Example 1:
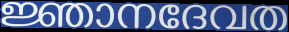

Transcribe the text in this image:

ജ്ഞാനദേവത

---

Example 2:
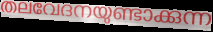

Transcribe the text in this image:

തലവേദനയുണ്ടാക്കുന്ന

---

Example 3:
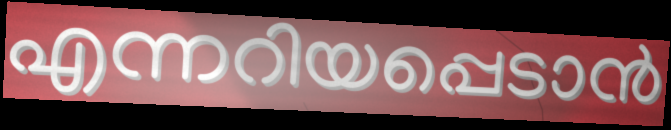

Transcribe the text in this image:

എന്നറിയപ്പെടാൻ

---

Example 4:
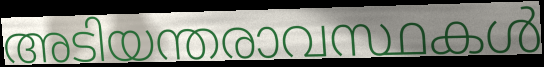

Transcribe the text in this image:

അടിയന്തരാവസ്ഥകൾ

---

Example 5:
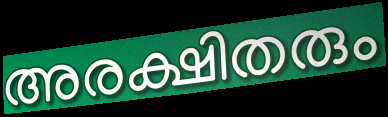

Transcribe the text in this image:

അരക്ഷിതരും